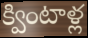
క్వింటాళ్ల